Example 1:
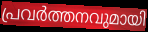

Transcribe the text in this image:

പ്രവർത്തനവുമായി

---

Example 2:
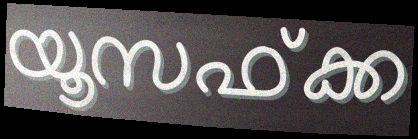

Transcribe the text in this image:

യൂസഫ്ക്ക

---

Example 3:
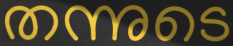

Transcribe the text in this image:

തന്നുടെ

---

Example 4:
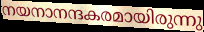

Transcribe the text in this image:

നയനാനന്ദകരമായിരുന്നു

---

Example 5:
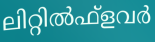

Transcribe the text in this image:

ലിറ്റിൽഫ്ളവർ